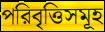
পরিবৃত্তিসমূহ